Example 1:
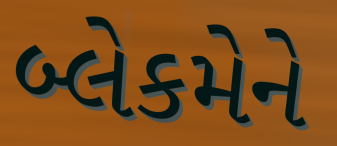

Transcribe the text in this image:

બ્લેકમેને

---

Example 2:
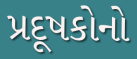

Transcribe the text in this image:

પ્રદૂષકોનો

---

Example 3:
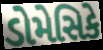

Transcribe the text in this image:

ડોમેસિકે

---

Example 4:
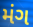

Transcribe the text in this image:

મંગ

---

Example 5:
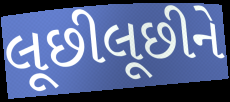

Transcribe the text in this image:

લૂછીલૂછીને